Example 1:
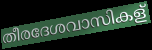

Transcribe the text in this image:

തീരദേശവാസികള്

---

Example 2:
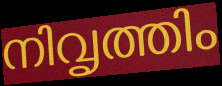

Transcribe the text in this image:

നിവൃത്തിം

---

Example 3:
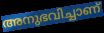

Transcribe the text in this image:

അനുഭവിച്ചാണ്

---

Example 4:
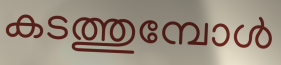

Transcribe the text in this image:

കടത്തുമ്പോൾ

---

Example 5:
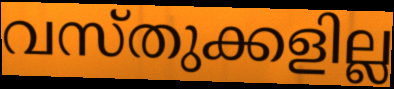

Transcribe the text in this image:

വസ്തുക്കളില്ല